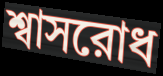
শ্বাসরোধ